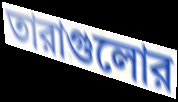
তারাগুলোর